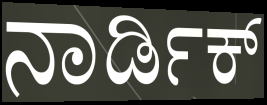
ನಾರ್ಡಿಕ್